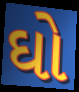
ઘો